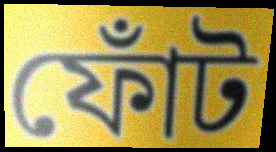
ফোঁট